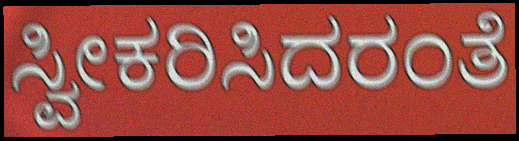
ಸ್ವೀಕರಿಸಿದರಂತೆ